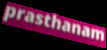
prasthanam